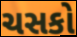
ચસકો